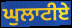
ਘੁਲਾਟੀਏ